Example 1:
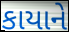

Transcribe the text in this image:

કાયાને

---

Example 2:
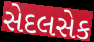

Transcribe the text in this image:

સેદલસેક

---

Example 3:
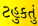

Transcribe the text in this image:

ટહુકતું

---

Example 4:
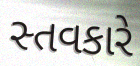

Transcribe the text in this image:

સ્તવકારે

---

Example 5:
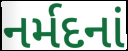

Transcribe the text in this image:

નર્મદનાં